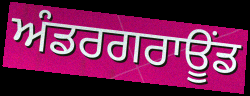
ਅੰਡਰਗਰਾਊਂਡ